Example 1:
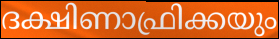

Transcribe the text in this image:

ദക്ഷിണാഫ്രിക്കയും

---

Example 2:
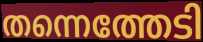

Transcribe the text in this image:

തന്നെത്തേടി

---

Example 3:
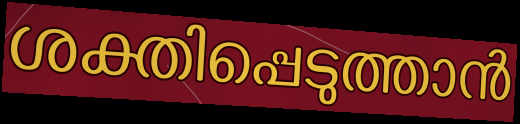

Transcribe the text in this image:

ശക്തിപ്പെടുത്താൻ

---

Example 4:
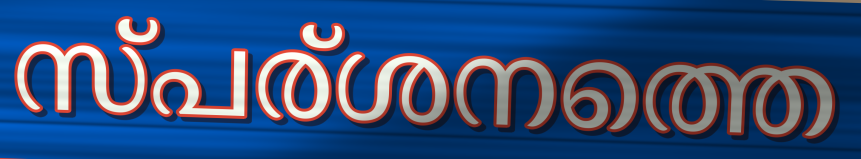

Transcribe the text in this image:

സ്പര്ശനത്തെ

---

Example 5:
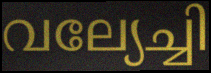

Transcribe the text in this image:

വല്യേച്ചി